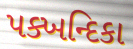
પક્ખન્દિકા